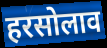
हरसोलाव